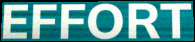
EFFORT